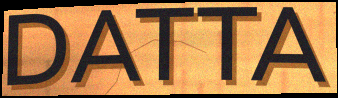
DATTA